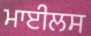
ਮਾਈਲਸ